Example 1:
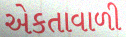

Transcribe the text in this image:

એકતાવાળી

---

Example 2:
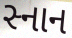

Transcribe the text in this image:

સ્નાન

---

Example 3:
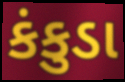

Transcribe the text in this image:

કંકુડા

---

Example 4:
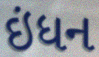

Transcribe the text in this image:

ઇંધન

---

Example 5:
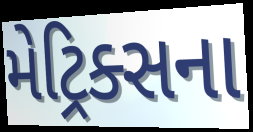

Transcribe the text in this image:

મેટ્રિક્સના